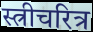
स्त्रीचरित्र